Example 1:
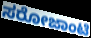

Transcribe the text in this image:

ಸರೋಜಾಂಟಿ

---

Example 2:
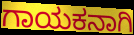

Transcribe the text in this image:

ಗಾಯಕನಾಗಿ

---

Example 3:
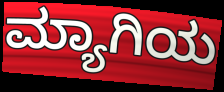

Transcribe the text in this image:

ಮ್ಯಾಗಿಯ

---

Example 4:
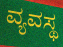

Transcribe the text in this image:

ವ್ಯವಸ್ಥ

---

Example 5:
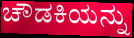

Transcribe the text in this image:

ಚೌಡಕಿಯನ್ನು